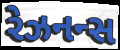
રેઝનન્સ